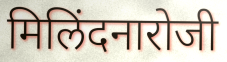
मिलिंदनारोजी